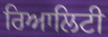
ਰਿਆਲਿਟੀ